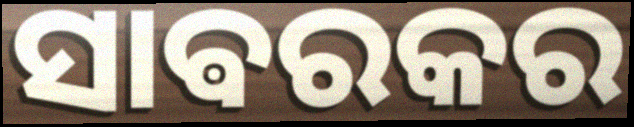
ସାଵରକର